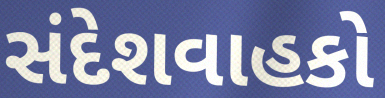
સંદેશવાહકો